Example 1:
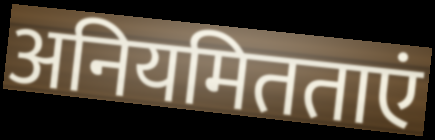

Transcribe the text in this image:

अनियमितताएं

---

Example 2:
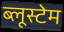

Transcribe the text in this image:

ब्लूस्टेम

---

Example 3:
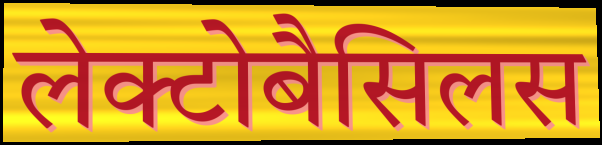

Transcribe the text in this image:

लेक्टोबैसिलस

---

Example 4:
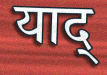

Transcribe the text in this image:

याद्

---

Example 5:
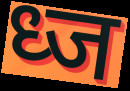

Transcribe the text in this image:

ध्ज